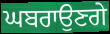
ਘਬਰਾਉਣਗੇ